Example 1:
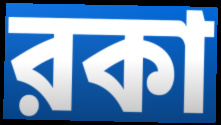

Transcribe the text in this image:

রকা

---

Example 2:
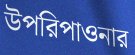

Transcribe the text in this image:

উপরিপাওনার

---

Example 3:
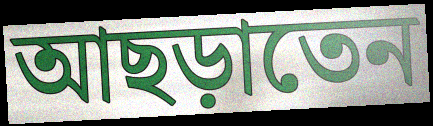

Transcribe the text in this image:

আছড়াতেন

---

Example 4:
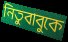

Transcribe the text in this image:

নিতুবাবুকে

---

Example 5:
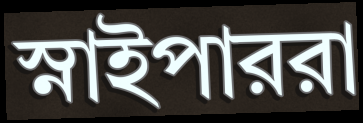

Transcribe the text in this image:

স্নাইপাররা